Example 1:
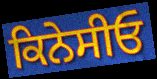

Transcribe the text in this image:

ਕਿਨੇਸੀਓ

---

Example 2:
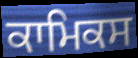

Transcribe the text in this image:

ਕਾਮਿਕਸ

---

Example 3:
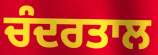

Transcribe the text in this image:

ਚੰਦਰਤਾਲ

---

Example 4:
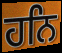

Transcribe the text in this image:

ਹਨਿ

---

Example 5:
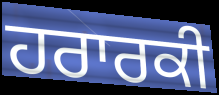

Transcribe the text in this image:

ਹਰਾਰਕੀ